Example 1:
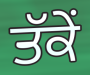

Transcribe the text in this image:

ਤੱਕੇਂ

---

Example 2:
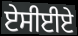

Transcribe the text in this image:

ਏਸੀਈਏ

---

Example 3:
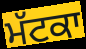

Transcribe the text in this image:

ਮੱਟਕਾ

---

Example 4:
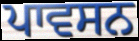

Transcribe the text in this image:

ਪਾਵਸਨ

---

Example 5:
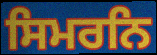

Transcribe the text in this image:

ਸਿਮਰਨਿ